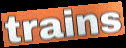
trains